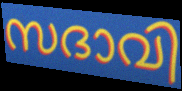
സദാവി